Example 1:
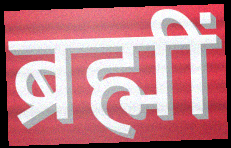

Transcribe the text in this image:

ब्रह्मीं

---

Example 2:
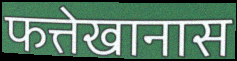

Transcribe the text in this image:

फत्तेखानास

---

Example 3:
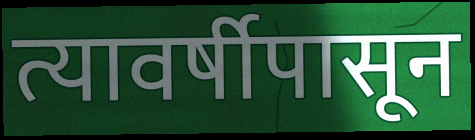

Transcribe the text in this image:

त्यावर्षीपासून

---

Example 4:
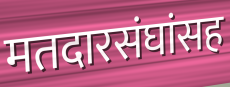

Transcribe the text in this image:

मतदारसंघांसह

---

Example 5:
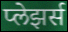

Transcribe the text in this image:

प्लेझर्स